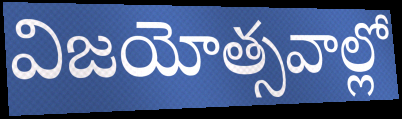
విజయోత్సవాల్లో